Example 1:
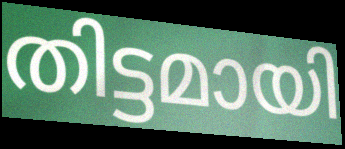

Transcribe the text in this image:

തിട്ടമായി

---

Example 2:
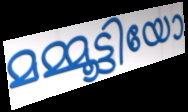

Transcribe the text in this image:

മമ്മൂട്ടിയോ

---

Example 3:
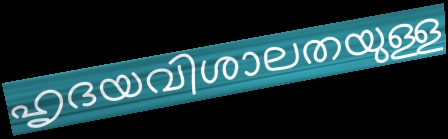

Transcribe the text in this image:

ഹൃദയവിശാലതയുള്ള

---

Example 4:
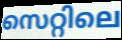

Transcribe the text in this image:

സെറ്റിലെ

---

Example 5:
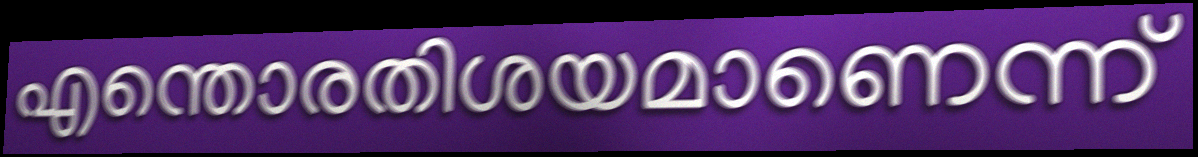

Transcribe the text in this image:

എന്തൊരതിശയമാണെന്ന്